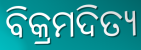
ବିକ୍ରମଦିତ୍ୟ